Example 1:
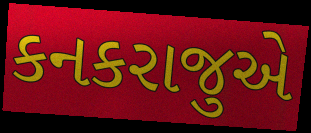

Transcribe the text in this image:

કનકરાજુએ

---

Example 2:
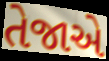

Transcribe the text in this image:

તેજાએ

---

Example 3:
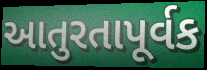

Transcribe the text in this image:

આતુરતાપૂર્વક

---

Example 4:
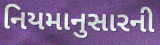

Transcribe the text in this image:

નિયમાનુસારની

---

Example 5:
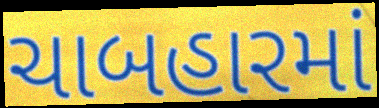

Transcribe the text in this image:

ચાબહારમાં